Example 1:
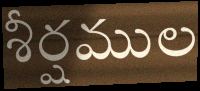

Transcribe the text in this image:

శీర్షముల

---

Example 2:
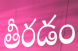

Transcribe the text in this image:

తీరడం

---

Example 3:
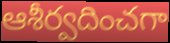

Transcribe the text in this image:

ఆశీర్వదించగా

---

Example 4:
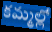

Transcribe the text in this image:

కమ్మల్లో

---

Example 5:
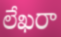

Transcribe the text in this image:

లేఖరా